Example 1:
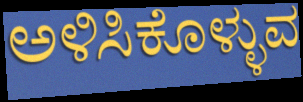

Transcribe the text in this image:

ಅಳಿಸಿಕೊಳ್ಳುವ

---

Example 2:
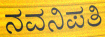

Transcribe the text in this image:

ನವನಿಪತಿ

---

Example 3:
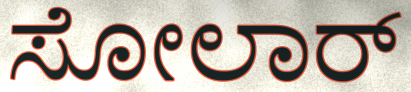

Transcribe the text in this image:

ಸೋಲಾರ್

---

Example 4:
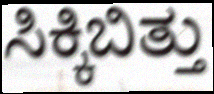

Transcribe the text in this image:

ಸಿಕ್ಕಿಬಿತ್ತು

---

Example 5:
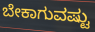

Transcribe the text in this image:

ಬೇಕಾಗುವಷ್ಟು